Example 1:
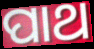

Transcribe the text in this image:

ପାଥ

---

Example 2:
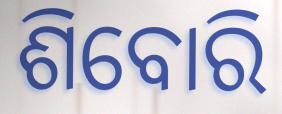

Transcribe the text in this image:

ଶିବୋରି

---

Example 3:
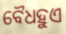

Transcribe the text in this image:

ବୈଧହୁଏ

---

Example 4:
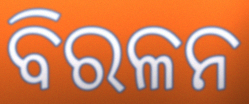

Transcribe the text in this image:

ବିରଳନ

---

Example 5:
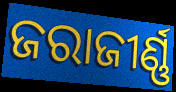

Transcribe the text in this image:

ଜରାଜୀର୍ଣ୍ଣ